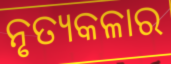
ନୃତ୍ୟକଳାର